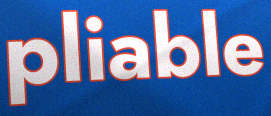
pliable